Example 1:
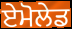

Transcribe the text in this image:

ਏਮੋਲੇਡ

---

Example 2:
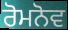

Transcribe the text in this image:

ਰੋਮਨੋਵ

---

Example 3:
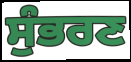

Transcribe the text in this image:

ਸੁੰਭਰਣ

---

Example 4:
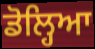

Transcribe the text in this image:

ਡੋਲ੍ਹਿਆ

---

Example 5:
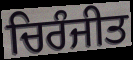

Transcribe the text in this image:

ਚਿਰੰਜੀਤ